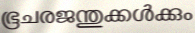
ഭൂചരജന്തുക്കൾക്കും